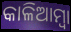
କାଳିଆମ୍ବା